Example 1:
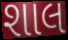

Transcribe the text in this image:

શાલ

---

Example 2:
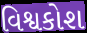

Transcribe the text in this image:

વિશ્વકોશ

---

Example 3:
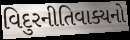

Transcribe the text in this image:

વિદુરનીતિવાક્યનો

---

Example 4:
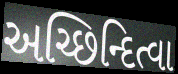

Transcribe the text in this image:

અચ્છિન્દિત્વા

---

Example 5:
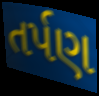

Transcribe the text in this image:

તર્પણ